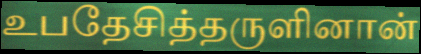
உபதேசித்தருளினான்